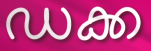
ഡക്ക